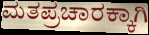
ಮತಪ್ರಚಾರಕ್ಕಾಗಿ